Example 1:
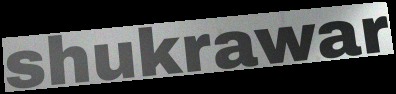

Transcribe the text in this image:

shukrawar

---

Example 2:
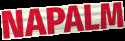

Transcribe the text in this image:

NAPALM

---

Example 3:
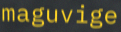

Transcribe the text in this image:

maguvige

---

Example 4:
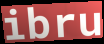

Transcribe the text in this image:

ibru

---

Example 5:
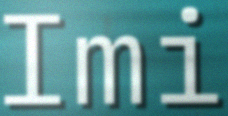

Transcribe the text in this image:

Imi